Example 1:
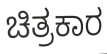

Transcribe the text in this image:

ಚಿತ್ರಕಾರ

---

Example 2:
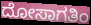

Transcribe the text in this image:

ದೋಸಾಗತಿಂ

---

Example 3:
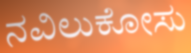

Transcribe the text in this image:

ನವಿಲುಕೋಸು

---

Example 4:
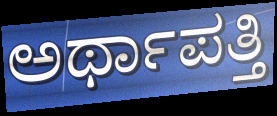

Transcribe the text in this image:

ಅರ್ಥಾಪತ್ತಿ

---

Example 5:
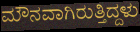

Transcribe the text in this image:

ಮೌನವಾಗಿರುತ್ತಿದ್ದಳು